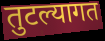
तुटल्यागत